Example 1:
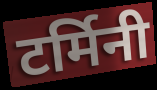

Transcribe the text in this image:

टर्मिनी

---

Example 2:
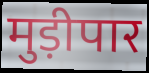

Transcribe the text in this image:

मुड़ीपार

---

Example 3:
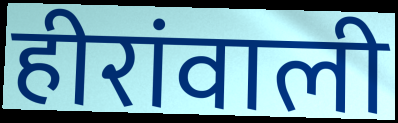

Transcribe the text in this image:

हीरांवाली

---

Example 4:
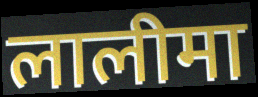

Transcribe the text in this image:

लालीमा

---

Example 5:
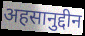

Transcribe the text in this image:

अहसानुद्दीन